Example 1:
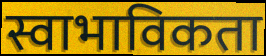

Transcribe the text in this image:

स्वाभाविकता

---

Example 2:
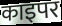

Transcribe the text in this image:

काइपर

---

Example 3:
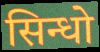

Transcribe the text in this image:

सिन्धो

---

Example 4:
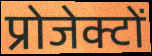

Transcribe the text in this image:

प्रोजेक्टों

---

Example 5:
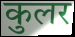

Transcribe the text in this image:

कुलर